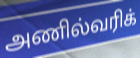
அணில்வரிக்